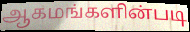
ஆகமங்களின்படி